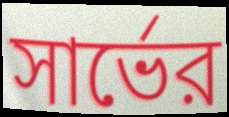
সার্ভের